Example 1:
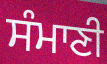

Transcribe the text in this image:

ਸੰਮਾਣੀ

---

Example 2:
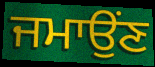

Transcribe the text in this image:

ਜਮਾਉਂਣ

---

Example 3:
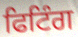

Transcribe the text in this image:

ਫਿਟਿੰਗ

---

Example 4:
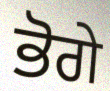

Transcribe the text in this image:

ਭੋਗੇ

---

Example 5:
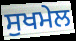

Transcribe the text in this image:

ਸੁਖਮੇਲ